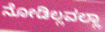
ನೋಡಿಲ್ಲವಲ್ಲಾ